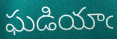
ఘడియాఁ